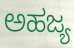
ಅಹಜ್ಯ